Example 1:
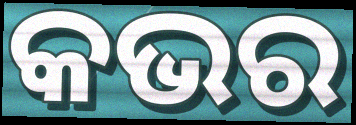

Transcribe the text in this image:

କଭର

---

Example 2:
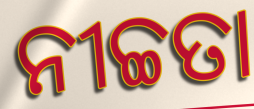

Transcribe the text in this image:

ନୀଚ୍ଚତା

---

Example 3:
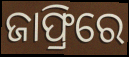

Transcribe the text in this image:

ଜାଫ୍ରିରେ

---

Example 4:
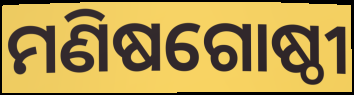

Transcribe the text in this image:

ମଣିଷଗୋଷ୍ଠୀ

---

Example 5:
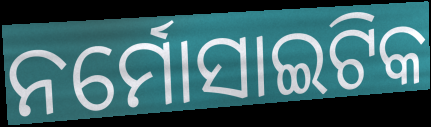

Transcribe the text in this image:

ନର୍ମୋସାଇଟିକ